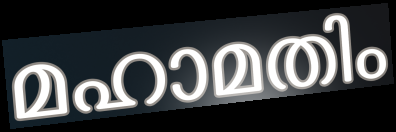
മഹാമതിം